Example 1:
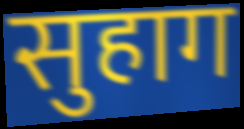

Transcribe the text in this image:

सुहाग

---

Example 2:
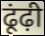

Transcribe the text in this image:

ढूंढ़ी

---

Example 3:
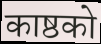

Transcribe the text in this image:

काष्ठको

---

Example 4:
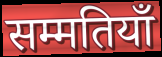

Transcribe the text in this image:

सम्मतियाँ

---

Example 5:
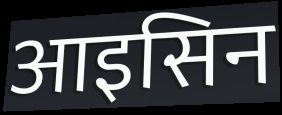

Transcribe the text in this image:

आइसिन